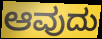
ಆವುದು